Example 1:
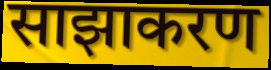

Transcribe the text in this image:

साझाकरण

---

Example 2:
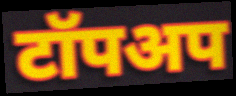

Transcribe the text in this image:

टॉपअप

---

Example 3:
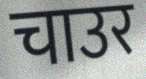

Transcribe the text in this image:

चाउर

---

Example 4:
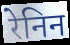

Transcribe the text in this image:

रेनिन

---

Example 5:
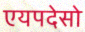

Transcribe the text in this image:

एयपदेसो